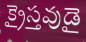
క్రైస్తవుడై